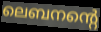
ലെബനന്റെ